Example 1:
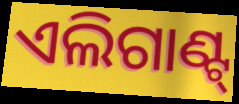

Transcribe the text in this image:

ଏଲିଗାଣ୍ଟ୍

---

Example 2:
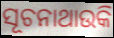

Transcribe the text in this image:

ସୂଚନାଥାଉକି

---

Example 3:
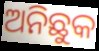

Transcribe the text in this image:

ଅନିଛୁକ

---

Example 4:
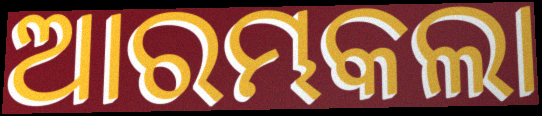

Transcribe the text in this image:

ଆରମ୍ଭକଲା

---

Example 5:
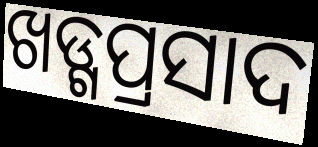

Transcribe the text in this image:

ଖଡ୍ଗପ୍ରସାଦ